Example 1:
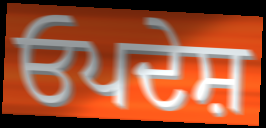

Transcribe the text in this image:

ਓਪਦੇਸ਼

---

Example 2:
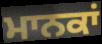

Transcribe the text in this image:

ਮਾਨਕਾਂ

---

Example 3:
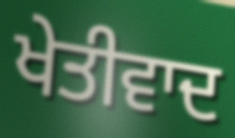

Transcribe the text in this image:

ਖੇਤੀਵਾਦ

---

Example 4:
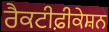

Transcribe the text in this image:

ਰੈਕਟੀਫ਼ੀਕੇਸ਼ਨ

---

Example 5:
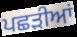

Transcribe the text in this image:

ਪਛੜੀਆਂ